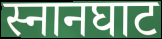
स्नानघाट